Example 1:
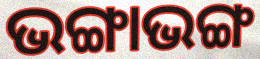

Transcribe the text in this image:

ଭଙ୍ଗାଭଙ୍ଗ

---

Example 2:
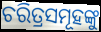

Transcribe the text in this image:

ଚରିତ୍ରସମୂହଙ୍କୁ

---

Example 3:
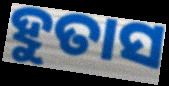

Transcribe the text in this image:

ହୁତାସ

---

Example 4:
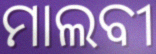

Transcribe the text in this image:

ମାଲବୀ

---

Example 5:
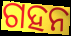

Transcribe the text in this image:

ଗହନ